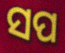
ସପ